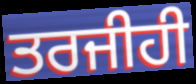
ਤਰਜੀਹੀ